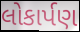
લોકાર્પણ